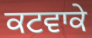
ਕਟਵਾਕੇ